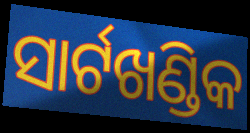
ସାର୍ଟଖଣ୍ଡିକ